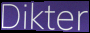
Dikter